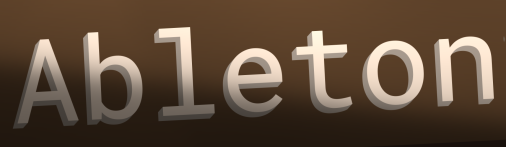
Ableton